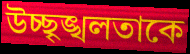
উচ্ছৃঙ্খলতাকে